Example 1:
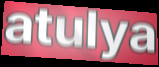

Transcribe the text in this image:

atulya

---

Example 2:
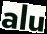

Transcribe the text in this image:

alu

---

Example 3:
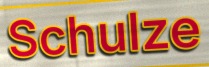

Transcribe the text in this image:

Schulze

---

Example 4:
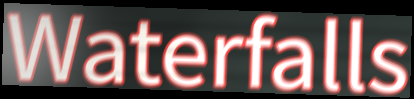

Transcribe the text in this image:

Waterfalls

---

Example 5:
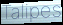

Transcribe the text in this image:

Talipes